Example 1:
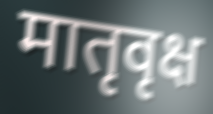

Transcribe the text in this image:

मातृवृक्ष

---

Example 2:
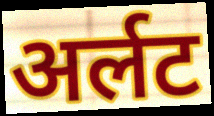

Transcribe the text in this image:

अर्लट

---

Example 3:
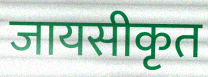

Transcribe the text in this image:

जायसीकृत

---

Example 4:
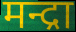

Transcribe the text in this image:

मन्द्रा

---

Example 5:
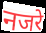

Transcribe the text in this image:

नजरे